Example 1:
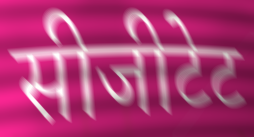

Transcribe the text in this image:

सीजीटेट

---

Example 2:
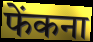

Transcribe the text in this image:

फेंकना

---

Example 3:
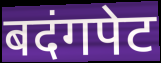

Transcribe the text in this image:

बदंगपेट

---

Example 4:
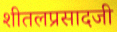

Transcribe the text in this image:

शीतलप्रसादजी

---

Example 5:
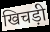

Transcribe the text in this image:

खिचड़ी